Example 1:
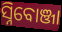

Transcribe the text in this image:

ସ୍ନିବୋଞ୍ଜା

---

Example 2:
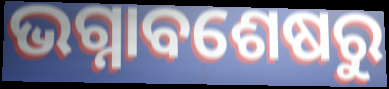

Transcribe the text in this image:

ଭଗ୍ନାବଶେଷରୁ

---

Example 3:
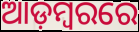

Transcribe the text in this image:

ଆଡ଼ମ୍ୱରରେ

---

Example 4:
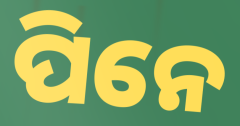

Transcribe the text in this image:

ପିନେ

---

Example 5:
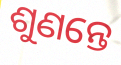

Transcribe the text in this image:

ଶୁଣନ୍ତେ